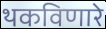
थकविणारे